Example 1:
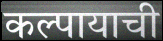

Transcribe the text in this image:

कल्पायाची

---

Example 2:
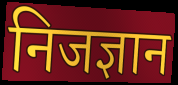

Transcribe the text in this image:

निजज्ञान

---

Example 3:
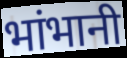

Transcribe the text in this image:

भांभानी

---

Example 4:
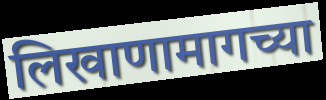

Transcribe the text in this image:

लिखाणामागच्या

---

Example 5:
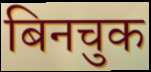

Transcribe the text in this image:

बिनचुक